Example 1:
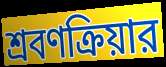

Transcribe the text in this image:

শ্রবণক্রিয়ার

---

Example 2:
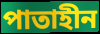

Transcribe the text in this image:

পাতাহীন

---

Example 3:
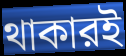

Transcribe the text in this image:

থাকারই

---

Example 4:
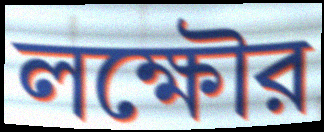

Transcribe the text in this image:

লক্ষৌর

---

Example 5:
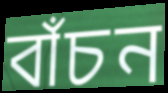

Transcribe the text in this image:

বাঁচন